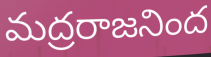
మద్రరాజనింద